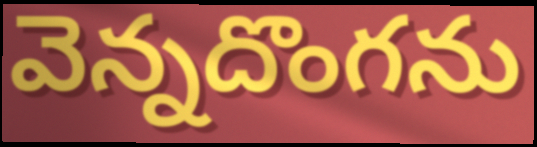
వెన్నదొంగను